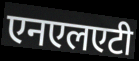
एनएलएटी